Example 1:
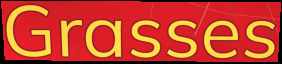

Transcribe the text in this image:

Grasses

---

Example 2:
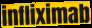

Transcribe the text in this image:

infliximab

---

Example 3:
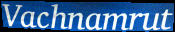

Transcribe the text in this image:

Vachnamrut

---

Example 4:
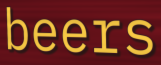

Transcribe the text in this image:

beers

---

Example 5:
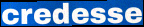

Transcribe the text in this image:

credesse